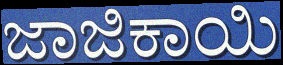
ಜಾಜಿಕಾಯಿ